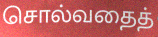
சொல்வதைத்